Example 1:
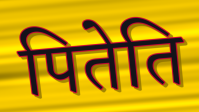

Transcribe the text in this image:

पितेति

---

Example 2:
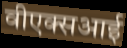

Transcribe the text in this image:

वीएक्सआई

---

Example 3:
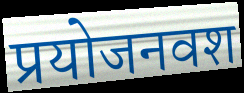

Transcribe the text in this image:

प्रयोजनवश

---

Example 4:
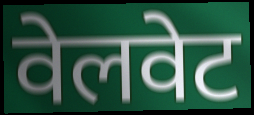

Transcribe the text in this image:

वेलवेट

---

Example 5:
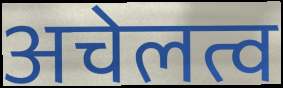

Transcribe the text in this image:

अचेलत्व